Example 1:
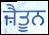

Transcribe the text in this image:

ਜ਼ੈਤੂਨ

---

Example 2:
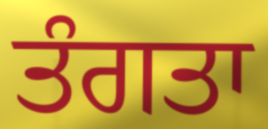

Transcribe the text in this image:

ਤੰਗਤਾ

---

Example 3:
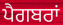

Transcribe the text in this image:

ਪੈਗਬਰਾਂ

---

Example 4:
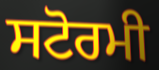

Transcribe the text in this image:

ਸਟੋਰਮੀ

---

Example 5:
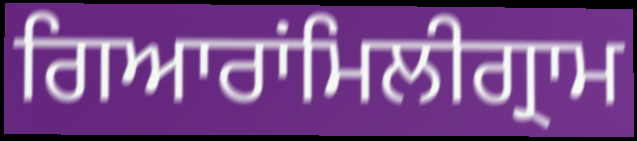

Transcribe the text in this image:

ਗਿਆਰਾਂਮਿਲੀਗ੍ਰਾਮ